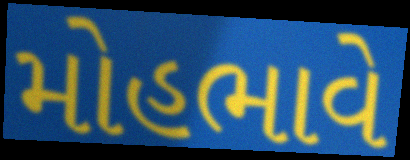
મોહભાવે